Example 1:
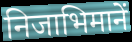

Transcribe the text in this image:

निजाभिमानें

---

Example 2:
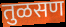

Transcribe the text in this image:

तुळसण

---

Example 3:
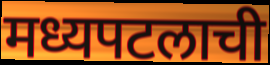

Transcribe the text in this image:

मध्यपटलाची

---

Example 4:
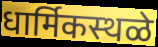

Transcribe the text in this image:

धार्मिकस्थळे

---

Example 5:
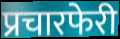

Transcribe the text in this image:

प्रचारफेरी